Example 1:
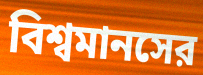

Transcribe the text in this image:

বিশ্বমানসের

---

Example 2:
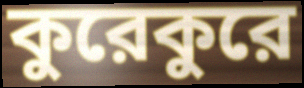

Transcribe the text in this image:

কুরেকুরে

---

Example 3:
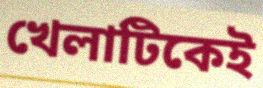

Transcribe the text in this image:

খেলাটিকেই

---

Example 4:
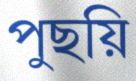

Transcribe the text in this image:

পুছয়ি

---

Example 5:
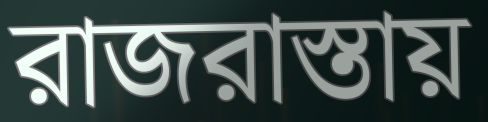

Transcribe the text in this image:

রাজরাস্তায়